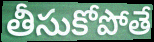
తీసుకోపోతే